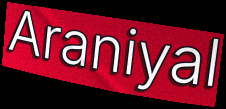
Araniyal